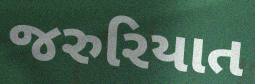
જરુરિયાત